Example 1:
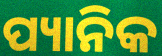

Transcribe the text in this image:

ପ୍ୟାନିକ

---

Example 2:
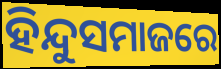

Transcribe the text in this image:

ହିନ୍ଦୁସମାଜରେ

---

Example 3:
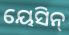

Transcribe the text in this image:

ୟେସିନ୍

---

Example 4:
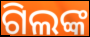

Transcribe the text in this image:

ଗିଲଙ୍କ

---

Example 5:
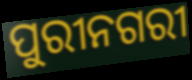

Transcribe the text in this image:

ପୁରୀନଗରୀ